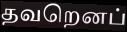
தவறெனப்